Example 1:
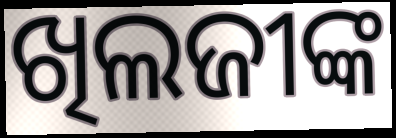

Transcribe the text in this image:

ଖିଲଜୀଙ୍କ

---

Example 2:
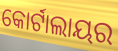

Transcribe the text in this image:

କୋର୍ଟାଲାୟର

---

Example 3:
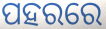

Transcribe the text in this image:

ପହରରେ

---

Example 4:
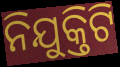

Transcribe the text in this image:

ନିଯୁକ୍ତିଟି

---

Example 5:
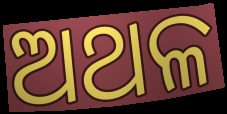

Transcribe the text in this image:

ଅଥଳ